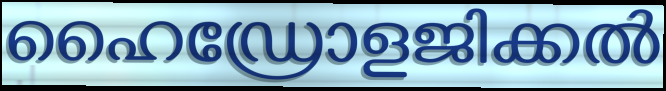
ഹൈഡ്രോളജിക്കൽ